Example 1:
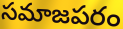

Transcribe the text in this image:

సమాజపరం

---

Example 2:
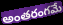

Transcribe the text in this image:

అంతరంగమే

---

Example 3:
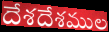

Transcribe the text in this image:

దేశదేశముల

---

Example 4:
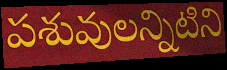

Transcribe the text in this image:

పశువులన్నిటిని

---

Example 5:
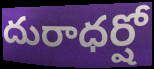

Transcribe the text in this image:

దురాధర్షో